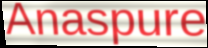
Anaspure